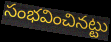
సంభవించినట్టు